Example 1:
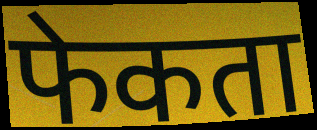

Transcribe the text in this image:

फेकता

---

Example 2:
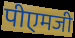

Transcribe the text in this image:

पीएमजी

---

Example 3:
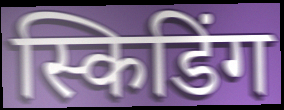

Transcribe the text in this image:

स्किडिंग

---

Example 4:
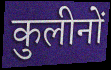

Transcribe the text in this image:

कुलीनों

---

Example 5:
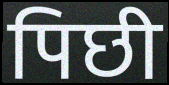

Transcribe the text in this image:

पिछी